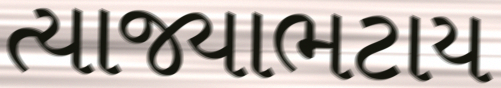
ત્યાજ્યાભટાય